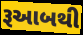
રૂઆબથી